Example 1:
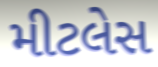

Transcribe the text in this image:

મીટલેસ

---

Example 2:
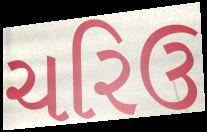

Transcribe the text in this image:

ચરિઉ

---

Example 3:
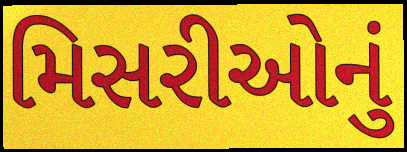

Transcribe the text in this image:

મિસરીઓનું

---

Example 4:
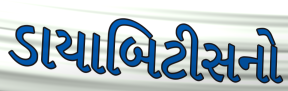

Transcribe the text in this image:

ડાયાબિટીસનો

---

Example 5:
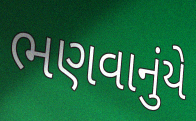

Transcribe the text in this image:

ભણવાનુંયે